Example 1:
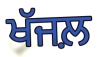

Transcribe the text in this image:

ਖੱਜਲ਼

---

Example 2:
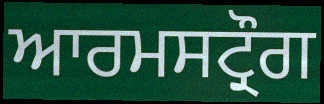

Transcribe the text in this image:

ਆਰਮਸਟ੍ਰੌਗ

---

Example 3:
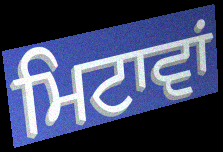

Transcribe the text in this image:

ਮਿਟਾਵਾਂ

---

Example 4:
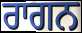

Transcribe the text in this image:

ਰਾਗਨ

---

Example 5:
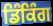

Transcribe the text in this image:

ਡਿੰਕਿੰਗ